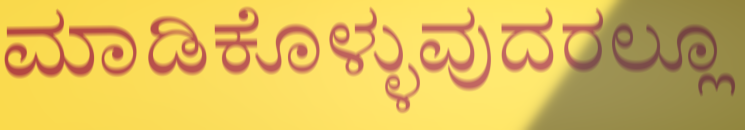
ಮಾಡಿಕೊಳ್ಳುವುದರಲ್ಲೂ